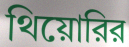
থিয়োরির